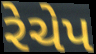
રેચેપ